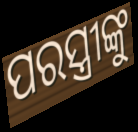
ପରସ୍ତ୍ରୀଙ୍କୁ